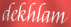
dekhlam